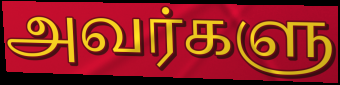
அவர்களு